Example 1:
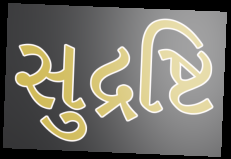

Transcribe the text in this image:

સુદ્રષ્ટિ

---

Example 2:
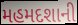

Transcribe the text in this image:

મહમદશાની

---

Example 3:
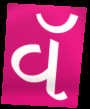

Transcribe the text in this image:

વૅ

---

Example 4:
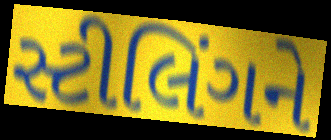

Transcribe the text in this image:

સ્ટીલિંગને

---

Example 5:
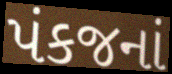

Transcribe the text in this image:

પંકજનાં